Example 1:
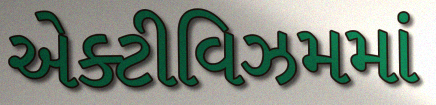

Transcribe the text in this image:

એક્ટીવિઝમમાં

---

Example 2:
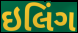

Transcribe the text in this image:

ઇલિંગ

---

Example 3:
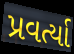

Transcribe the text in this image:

પ્રવર્ત્યા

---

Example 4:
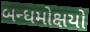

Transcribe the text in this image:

બન્ધમોક્ષયો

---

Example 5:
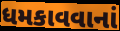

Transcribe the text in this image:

ધમકાવવાનાં